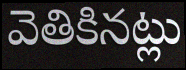
వెతికినట్లు